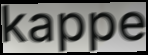
kappe